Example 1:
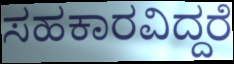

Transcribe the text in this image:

ಸಹಕಾರವಿದ್ದರೆ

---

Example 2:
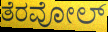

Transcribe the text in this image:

ತೆರವೋಲ್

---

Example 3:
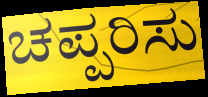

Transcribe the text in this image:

ಚಪ್ಪರಿಸು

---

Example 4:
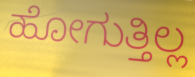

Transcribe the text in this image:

ಹೋಗುತ್ತಿಲ್ಲ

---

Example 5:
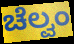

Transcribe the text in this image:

ಚೆಲ್ವಂ